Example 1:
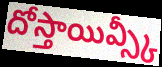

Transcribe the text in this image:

దోస్తాయివ్స్కీ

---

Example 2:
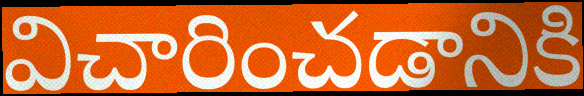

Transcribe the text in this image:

విచారించడానికి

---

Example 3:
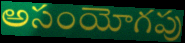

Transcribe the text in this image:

అసంయోగపు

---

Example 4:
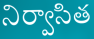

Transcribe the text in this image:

నిర్వాసిత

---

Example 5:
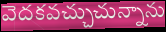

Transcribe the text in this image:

వెదకవచ్చుచున్నాను